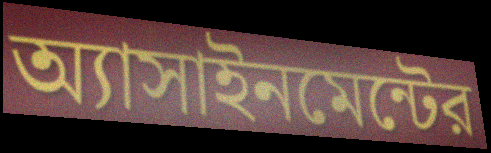
অ্যাসাইনমেন্টের